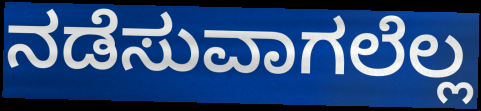
ನಡೆಸುವಾಗಲೆಲ್ಲ